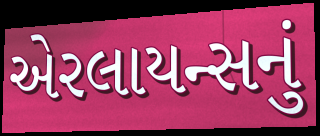
એરલાયન્સનું